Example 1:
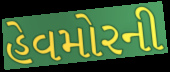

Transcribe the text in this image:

હેવમોરની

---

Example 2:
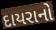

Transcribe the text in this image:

દાયરાનો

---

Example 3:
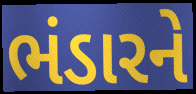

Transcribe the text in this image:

ભંડારને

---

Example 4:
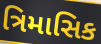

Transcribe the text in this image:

ત્રિમાસિક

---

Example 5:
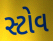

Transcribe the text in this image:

સ્ટોવ